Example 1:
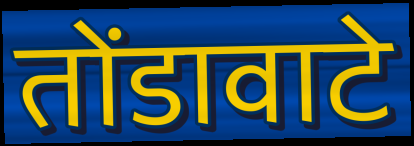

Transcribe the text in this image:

तोंडावाटे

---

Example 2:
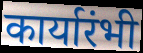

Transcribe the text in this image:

कार्यारंभी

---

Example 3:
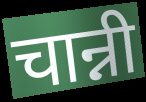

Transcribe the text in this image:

चान्नी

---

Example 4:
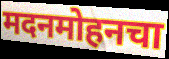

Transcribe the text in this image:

मदनमोहनचा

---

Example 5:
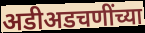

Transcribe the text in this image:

अडीअडचणींच्या